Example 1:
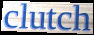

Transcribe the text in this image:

clutch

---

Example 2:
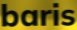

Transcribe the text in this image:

baris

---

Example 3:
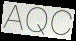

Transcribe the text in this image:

AQC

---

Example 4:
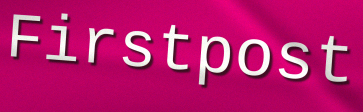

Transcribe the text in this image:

Firstpost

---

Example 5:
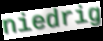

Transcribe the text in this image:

niedrig